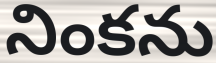
నింకను